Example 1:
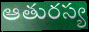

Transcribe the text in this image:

ఆతురస్య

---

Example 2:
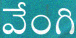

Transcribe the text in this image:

వేంగి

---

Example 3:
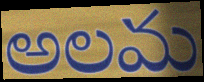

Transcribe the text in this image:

అలమ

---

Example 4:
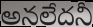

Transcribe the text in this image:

అనలేదనీ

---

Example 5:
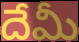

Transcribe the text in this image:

దేమీ